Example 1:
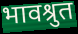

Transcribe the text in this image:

भावश्रुत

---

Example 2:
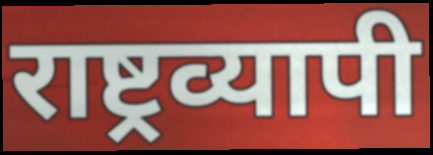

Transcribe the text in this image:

राष्ट्रव्यापी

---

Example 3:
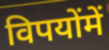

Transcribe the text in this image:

विपयोंमें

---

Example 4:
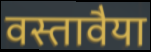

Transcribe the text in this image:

वस्तावैया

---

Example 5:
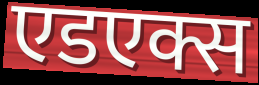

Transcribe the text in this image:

एडएक्स